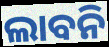
ଲାବନି